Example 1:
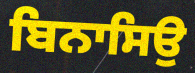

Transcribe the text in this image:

ਬਿਨਾਸਿਉ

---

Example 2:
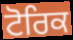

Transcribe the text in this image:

ਟੋਰਿਕ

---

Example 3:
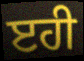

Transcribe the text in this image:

ੲਹੀ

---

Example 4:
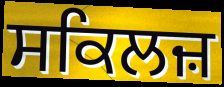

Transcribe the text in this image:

ਸਕਿਲਜ਼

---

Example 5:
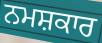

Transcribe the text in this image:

ਨਮਸ਼ਕਾਰ